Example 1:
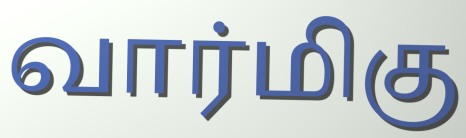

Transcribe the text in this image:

வார்மிகு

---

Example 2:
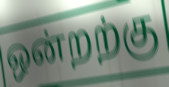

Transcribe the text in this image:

ஒன்றற்கு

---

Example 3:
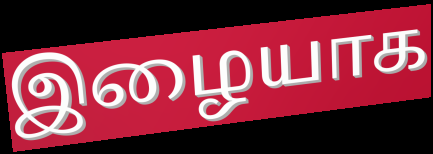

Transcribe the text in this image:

இழையாக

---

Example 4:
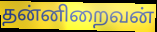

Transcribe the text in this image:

தன்னிறைவன்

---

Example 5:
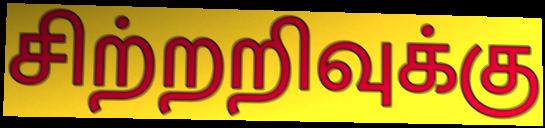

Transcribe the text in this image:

சிற்றறிவுக்கு